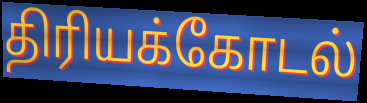
திரியக்கோடல்